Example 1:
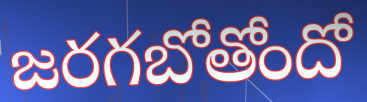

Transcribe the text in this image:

జరగబోతోందో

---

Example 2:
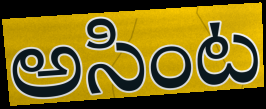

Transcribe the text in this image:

అసింట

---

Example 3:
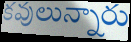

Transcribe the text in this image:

కవులున్నారు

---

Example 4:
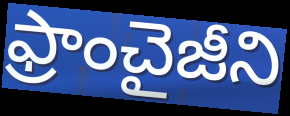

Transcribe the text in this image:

ఫ్రాంచైజీని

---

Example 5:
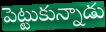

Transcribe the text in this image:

పెట్టుకున్నాడు